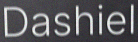
Dashiel